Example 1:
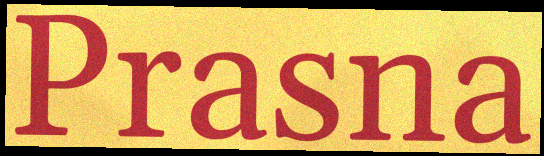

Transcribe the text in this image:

Prasna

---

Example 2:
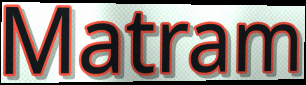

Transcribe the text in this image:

Matram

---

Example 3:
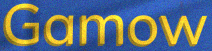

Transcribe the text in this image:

Gamow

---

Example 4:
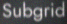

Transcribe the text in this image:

Subgrid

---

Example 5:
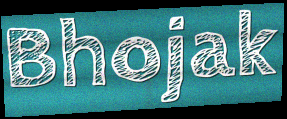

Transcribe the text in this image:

Bhojak